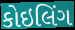
કોઇલિંગ